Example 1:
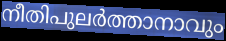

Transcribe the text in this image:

നീതിപുലർത്താനാവും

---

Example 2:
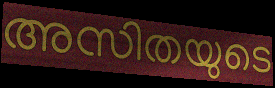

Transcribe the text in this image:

അസിതയുടെ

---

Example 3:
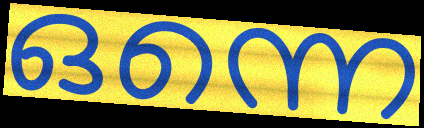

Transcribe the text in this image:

ഒന്നെ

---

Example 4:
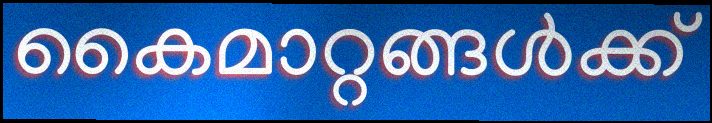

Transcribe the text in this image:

കൈമാറ്റങ്ങൾക്ക്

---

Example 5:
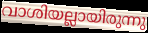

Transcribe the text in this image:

വാശിയല്ലായിരുന്നു